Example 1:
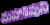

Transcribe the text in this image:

మహాశివుని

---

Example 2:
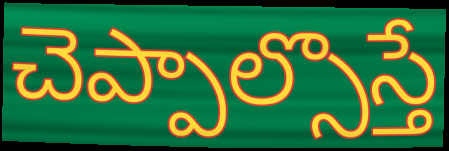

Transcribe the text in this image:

చెప్పాల్సొస్తే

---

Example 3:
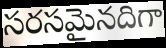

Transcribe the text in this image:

సరసమైనదిగా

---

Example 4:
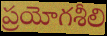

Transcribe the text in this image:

ప్రయోగశీలి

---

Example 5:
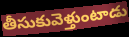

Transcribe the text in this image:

తీసుకువెళ్తుంటాడు